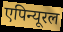
एपिन्यूरल